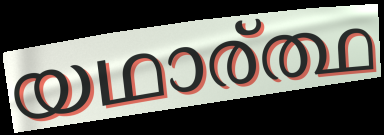
യഥാര്ത്ഥ